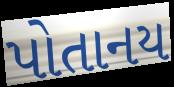
પોતાનય